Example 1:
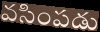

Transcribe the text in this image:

వసింపడు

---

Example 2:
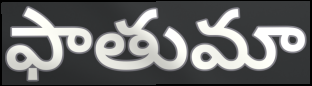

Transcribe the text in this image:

ఫాతుమా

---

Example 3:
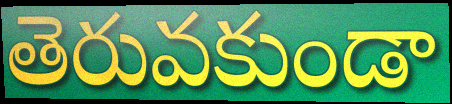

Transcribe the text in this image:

తెరువకుండా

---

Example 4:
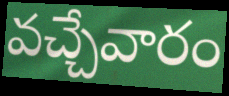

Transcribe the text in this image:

వచ్చేవారం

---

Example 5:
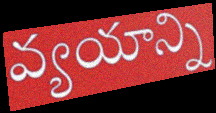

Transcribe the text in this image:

వ్యయాన్ని